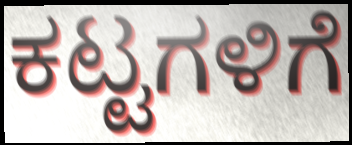
ಕಟ್ಟಗಳಿಗೆ